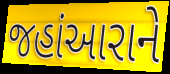
જહાંઆરાને